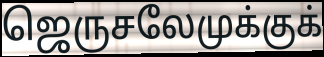
ஜெருசலேமுக்குக்